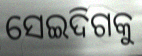
ସେଇଦିଗକୁ